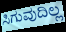
ಸಿಗುವುದಿಲ್ಲ